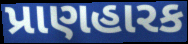
પ્રાણહારક